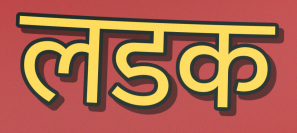
लडक